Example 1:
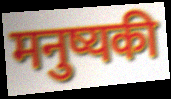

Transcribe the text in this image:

मनुष्यकी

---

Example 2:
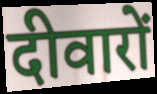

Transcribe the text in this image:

दीवारों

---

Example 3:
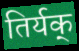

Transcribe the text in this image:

तिर्यक्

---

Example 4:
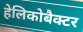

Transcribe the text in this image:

हेलिकोबैक्टर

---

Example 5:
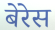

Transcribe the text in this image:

बेरेस